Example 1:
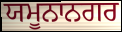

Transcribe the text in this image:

ਯਮੂਨਾਨਗਰ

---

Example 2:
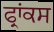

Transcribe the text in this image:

ਫ੍ਰਾਂਕਸ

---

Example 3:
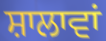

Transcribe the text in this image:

ਸ਼ਾਲਾਵਾਂ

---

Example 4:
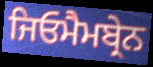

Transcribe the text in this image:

ਜਿਓਮੈਮਬ੍ਰੇਨ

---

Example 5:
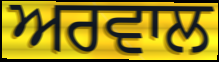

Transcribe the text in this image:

ਅਰਵਾਲ